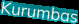
Kurumbas